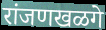
रांजणखळगे